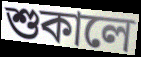
শুকালে